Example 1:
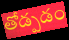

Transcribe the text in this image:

తోడ్పడం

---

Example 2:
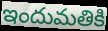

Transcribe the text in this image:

ఇందుమతికి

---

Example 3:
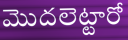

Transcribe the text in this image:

మొదలెట్టారో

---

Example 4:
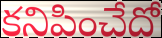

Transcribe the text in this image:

కనిపించేదో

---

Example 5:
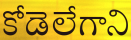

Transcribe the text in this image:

కోడెలేగాని